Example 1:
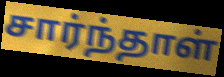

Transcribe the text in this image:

சார்ந்தாள்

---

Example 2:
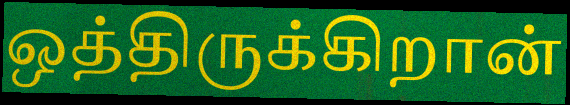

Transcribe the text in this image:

ஒத்திருக்கிறான்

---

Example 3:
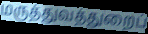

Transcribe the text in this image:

மருத்துவத்துறைப்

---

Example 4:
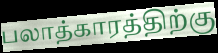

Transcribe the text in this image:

பலாத்காரத்திற்கு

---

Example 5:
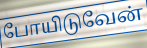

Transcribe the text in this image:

போயிடுவேன்